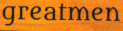
greatmen